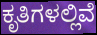
ಕೃತಿಗಳಲ್ಲಿವೆ